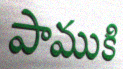
పాముకి